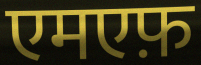
एमएफ़